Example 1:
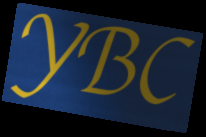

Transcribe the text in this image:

YBC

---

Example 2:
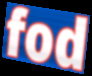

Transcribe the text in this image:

fod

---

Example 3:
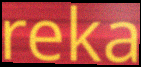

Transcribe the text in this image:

reka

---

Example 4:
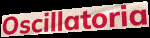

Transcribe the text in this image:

Oscillatoria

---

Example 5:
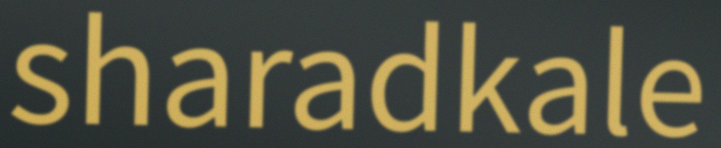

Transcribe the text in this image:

sharadkale